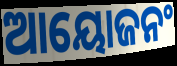
ଆୟୋଜନଂ